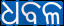
ଧବଳ